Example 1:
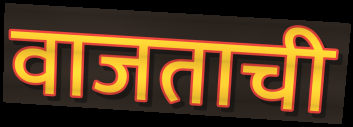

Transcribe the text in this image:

वाजताची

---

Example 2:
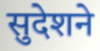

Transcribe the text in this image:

सुदेशने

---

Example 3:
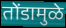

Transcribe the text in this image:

तोंडामुळे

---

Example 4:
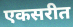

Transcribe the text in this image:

एकसरीत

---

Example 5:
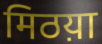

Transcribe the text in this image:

मिठय़ा